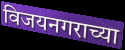
विजयनगराच्या